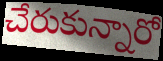
చేరుకున్నారో